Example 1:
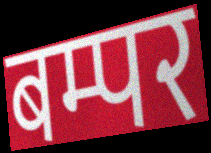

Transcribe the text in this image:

बम्पर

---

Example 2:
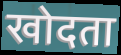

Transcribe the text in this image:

खोदता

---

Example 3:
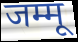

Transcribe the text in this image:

जम्मू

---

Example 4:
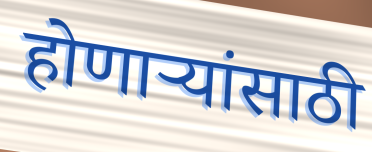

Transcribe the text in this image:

होणाऱ्यांसाठी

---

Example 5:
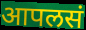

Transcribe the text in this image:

आपलसं